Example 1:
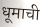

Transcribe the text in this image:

धूमाची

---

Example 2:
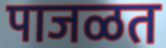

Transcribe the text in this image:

पाजळत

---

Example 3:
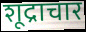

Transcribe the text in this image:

शूद्राचार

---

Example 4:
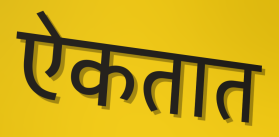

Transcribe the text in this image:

ऐकतात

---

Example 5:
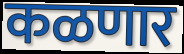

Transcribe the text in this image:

कळणार